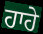
ਹਾਹੇ